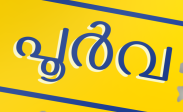
പൂർവ